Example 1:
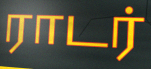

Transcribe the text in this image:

ராடர்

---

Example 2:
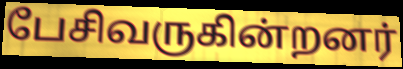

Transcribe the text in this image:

பேசிவருகின்றனர்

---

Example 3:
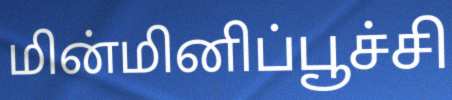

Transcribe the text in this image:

மின்மினிப்பூச்சி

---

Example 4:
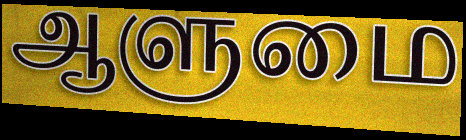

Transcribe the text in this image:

ஆளுமை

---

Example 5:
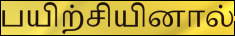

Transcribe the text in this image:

பயிற்சியினால்